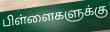
பிள்ளைகளுக்கு